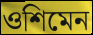
ওশিমেন